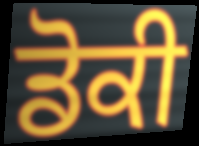
ਡੋਕੀ